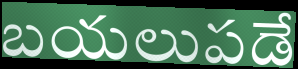
బయలుపడే